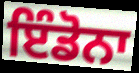
ਇੰਡੋਨਾ